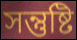
সন্তুষ্টি